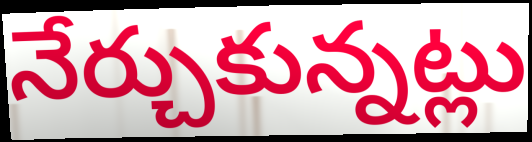
నేర్చుకున్నట్లు